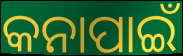
କନାପାଇଁ